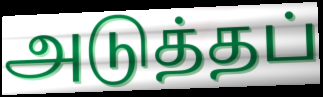
அடுத்தப்